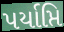
પર્યાપ્તિ